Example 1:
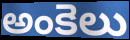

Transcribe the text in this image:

అంకెలు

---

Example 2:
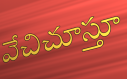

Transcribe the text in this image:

వేచిచూస్తూ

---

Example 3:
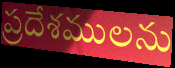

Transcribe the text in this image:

ప్రదేశములను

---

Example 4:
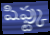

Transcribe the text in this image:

షిఫ్ట్కు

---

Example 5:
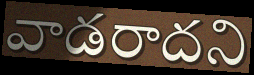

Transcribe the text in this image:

వాడరాదని